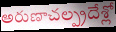
అరుణాచల్ప్రదేశ్లో